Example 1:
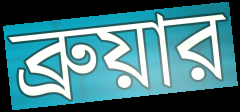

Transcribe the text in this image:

ব্রুয়ার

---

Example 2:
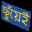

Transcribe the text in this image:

ছুঁয়েই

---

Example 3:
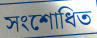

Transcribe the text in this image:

সংশোধিত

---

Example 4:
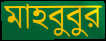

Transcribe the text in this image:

মাহবুবুর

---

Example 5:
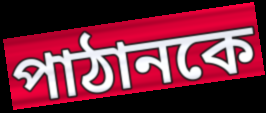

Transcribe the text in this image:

পাঠানকে